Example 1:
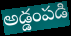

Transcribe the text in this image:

అడ్డంపడి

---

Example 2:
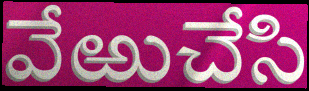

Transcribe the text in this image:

వేఱుచేసి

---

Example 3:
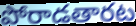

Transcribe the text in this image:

పోరాడతారట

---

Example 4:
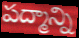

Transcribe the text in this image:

పద్మాన్ని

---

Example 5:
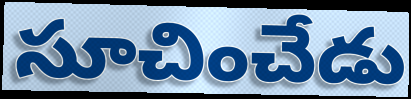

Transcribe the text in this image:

సూచించేడు